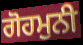
ਗੋਹਮੁਨੀ